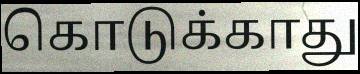
கொடுக்காது